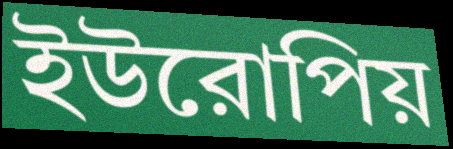
ইউরোপিয়